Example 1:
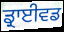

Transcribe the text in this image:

ਡ੍ਰਾਈਵਡ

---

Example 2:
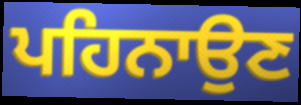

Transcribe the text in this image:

ਪਹਿਨਾਉਣ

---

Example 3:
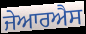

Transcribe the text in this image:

ਜੇਆਰਐਸ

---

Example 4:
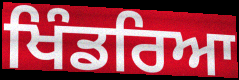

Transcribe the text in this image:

ਖਿੰਡਰਿਆ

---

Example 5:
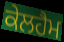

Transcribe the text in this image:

ਕੇਲਹੈਮ